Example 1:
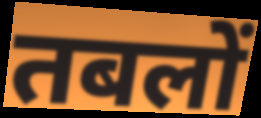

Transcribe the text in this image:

तबलों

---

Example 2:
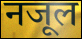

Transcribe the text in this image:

नजूल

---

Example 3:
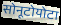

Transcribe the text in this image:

सोनूटोयोटा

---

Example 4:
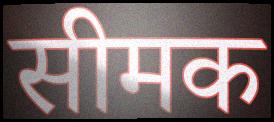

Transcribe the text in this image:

सीमक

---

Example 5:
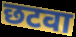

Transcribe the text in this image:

छटवा